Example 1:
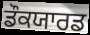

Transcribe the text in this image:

ਡੌਕਯਾਰਡ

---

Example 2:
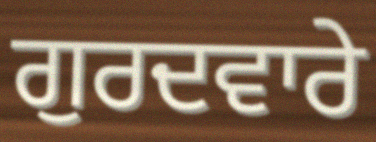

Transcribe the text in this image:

ਗੁਰਦਵਾਰੇ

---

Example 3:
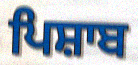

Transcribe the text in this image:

ਪਿਸ਼ਾਬ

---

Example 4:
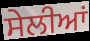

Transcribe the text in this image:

ਸੇਲੀਆਂ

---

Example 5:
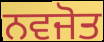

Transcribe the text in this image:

ਨਵਜੋਤ